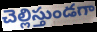
చెల్లిస్తుండగా